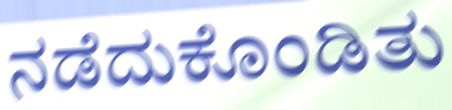
ನಡೆದುಕೊಂಡಿತು